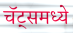
चॅट्समध्ये